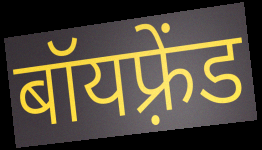
बॉयफ़्रेंड